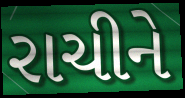
રાચીને